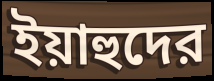
ইয়াহুদের